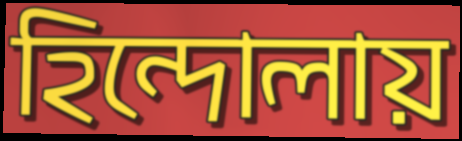
হিন্দোলায়